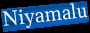
Niyamalu